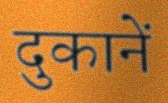
दुकानें